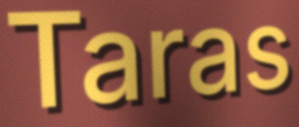
Taras